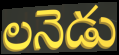
లనెడు